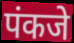
पंकजे